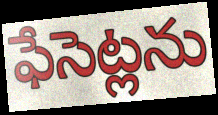
ఫేసెట్లను